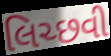
લિચ્છવી